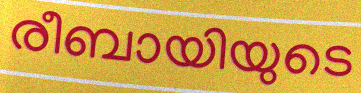
രീബായിയുടെ